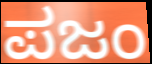
ಪಜಂ